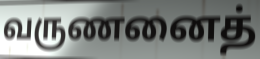
வருணனைத்